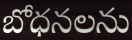
బోధనలను